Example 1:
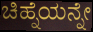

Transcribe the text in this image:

ಚಿಹ್ನೆಯನ್ನೇ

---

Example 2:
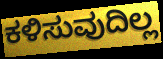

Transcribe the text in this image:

ಕಳಿಸುವುದಿಲ್ಲ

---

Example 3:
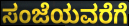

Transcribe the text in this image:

ಸಂಜೆಯವರೆಗೆ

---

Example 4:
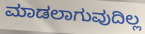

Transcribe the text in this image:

ಮಾಡಲಾಗುವುದಿಲ್ಲ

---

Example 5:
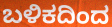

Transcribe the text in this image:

ಬಳಿಕದಿಂದ